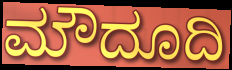
ಮೌದೂದಿ